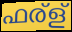
ഫര്ള്